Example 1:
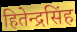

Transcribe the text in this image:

हितेन्द्रसिंह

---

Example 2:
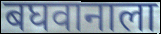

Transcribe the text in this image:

बघवानाला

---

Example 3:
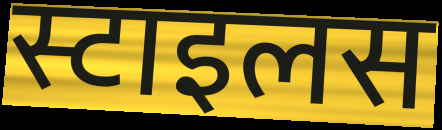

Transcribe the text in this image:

स्टाइलस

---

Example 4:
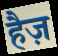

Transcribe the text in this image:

हैज़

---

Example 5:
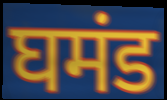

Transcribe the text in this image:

घमंड